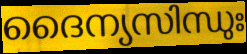
ദൈന്യസിന്ധുഃ